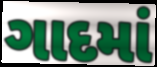
ગાદમાં